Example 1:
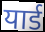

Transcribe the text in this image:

यार्ड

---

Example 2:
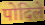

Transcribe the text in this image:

पोदिले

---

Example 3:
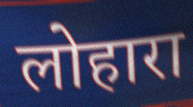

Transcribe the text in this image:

लोहारा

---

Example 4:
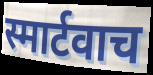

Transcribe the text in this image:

स्मार्टवाच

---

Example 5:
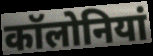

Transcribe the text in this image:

कॉलोनियां